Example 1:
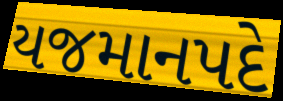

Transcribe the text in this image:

યજમાનપદે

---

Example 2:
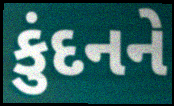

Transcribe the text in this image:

કુંદનને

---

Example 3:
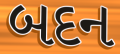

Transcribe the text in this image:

બદન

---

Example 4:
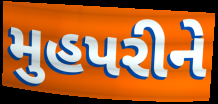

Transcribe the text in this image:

મુહપરીને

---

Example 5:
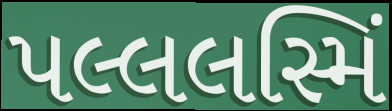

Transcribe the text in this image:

પલ્લલસ્મિં